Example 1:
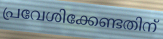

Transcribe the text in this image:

പ്രവേശിക്കേണ്ടതിന്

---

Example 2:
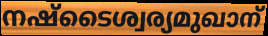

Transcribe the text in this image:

നഷ്ടൈശ്വര്യമുഖാന്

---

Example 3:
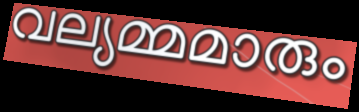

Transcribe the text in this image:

വല്യമ്മമാരും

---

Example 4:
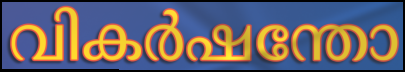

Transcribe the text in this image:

വികർഷന്തോ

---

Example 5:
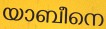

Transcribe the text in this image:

യാബീനെ